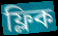
ফ্লিক